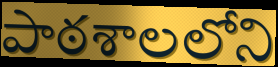
పాఠశాలలోని